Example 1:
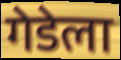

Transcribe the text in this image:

गेडेला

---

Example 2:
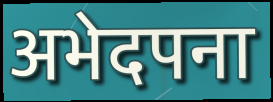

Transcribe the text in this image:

अभेदपना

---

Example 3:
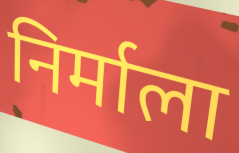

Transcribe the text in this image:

निर्माला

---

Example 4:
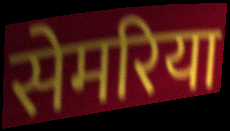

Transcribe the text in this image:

सेमरिया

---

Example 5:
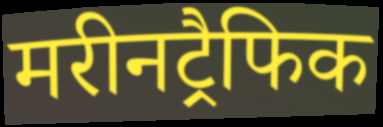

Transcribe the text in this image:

मरीनट्रैफिक